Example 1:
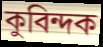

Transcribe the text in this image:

কুবিন্দক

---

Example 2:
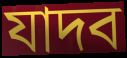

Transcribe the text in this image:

যাদব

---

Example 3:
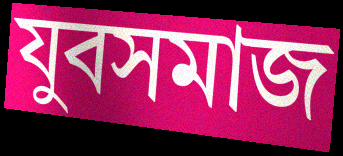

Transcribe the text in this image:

যুবসমাজ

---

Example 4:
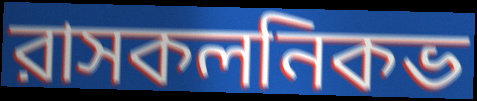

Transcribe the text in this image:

রাসকলনিকভ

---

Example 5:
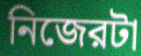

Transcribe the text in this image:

নিজেরটা